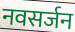
नवसर्जन